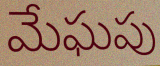
మేఘపు